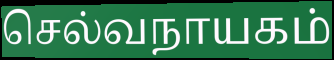
செல்வநாயகம்